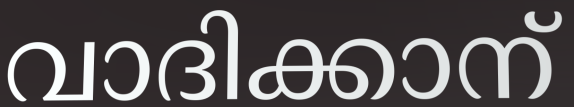
വാദിക്കാന്